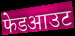
फेडआउट